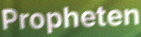
Propheten